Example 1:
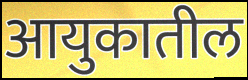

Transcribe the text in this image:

आयुकातील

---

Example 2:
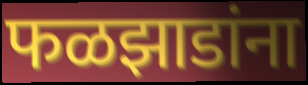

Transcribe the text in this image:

फळझाडांना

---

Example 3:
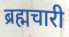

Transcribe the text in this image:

ब्रह्मचारी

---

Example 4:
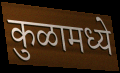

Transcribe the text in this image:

कुळामध्ये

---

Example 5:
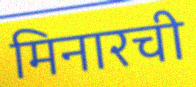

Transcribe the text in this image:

मिनारची